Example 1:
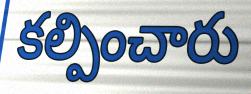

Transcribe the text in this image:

కల్పించారు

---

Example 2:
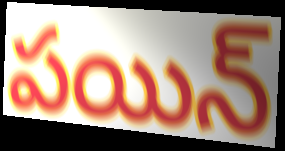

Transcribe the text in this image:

పయిన్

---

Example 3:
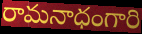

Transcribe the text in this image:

రామనాధంగారి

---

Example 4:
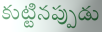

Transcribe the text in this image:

కుట్టినప్పుడు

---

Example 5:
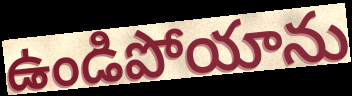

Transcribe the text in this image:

ఉండిపోయాను